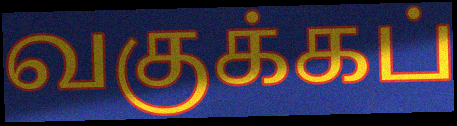
வகுக்கப்